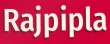
Rajpipla